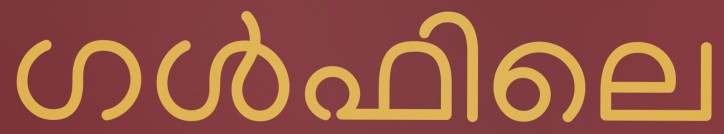
ഗൾഫിലെ